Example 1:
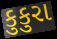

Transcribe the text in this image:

કુકુરા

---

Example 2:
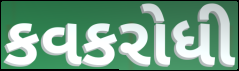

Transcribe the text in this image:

કવકરોધી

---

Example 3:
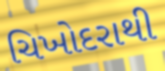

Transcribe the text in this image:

ચિખોદરાથી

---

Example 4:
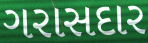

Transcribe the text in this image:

ગરાસદાર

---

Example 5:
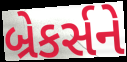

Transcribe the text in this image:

બ્રેકર્સને